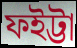
ফইট্টা